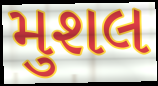
મુશલ